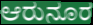
ಆರುನೂರ